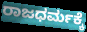
ರಾಜಧರ್ಮಕ್ಕೆ